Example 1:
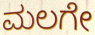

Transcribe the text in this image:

ಮಲಗೇ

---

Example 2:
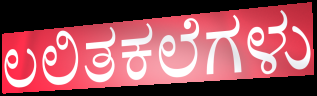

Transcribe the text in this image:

ಲಲಿತಕಲೆಗಳು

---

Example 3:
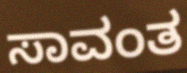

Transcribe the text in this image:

ಸಾವಂತ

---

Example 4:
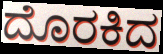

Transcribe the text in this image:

ದೊರಕಿದ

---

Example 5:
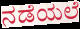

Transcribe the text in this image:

ನಡೆಯಲೆ